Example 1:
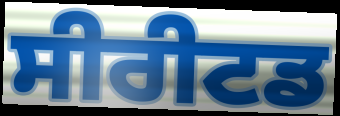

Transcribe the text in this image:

ਸੀਰੀਟਡ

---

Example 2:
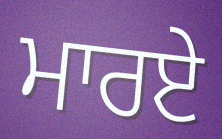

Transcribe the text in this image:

ਮਾਰਏ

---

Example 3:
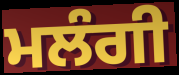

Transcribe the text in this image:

ਮਲੰਗੀ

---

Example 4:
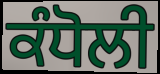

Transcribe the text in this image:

ਕੰਧੋਲੀ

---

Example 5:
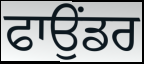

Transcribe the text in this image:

ਫਾਉਂਡਰ